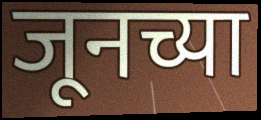
जूनच्या